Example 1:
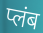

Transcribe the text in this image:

प्लंब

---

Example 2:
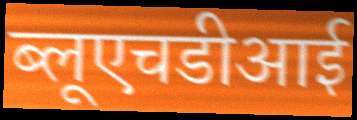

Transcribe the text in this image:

ब्लूएचडीआई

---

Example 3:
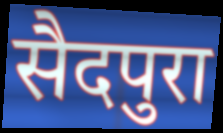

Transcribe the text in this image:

सैदपुरा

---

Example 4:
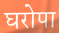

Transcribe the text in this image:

घरोपा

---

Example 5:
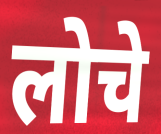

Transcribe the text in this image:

लोचे